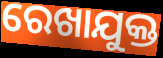
ରେଖାଯୁକ୍ତ